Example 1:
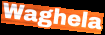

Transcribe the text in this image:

Waghela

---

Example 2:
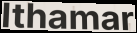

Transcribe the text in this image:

Ithamar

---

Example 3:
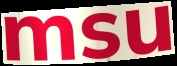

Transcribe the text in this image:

msu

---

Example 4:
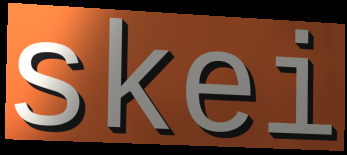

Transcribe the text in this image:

skei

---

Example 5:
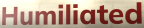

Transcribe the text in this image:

Humiliated